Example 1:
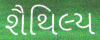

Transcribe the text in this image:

શૈથિલ્ય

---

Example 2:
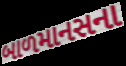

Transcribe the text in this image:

બાળમાનસના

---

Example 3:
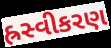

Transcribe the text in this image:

હ્રસ્વીકરણ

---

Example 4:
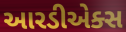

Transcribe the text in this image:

આરડીએક્સ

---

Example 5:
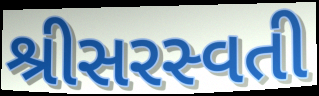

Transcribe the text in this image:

શ્રીસરસ્વતી